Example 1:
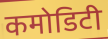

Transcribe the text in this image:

कमोडिटी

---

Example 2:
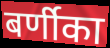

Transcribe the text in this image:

बर्णीका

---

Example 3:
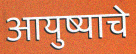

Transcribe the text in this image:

आयुष्याचे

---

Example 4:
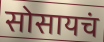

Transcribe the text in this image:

सोसायचं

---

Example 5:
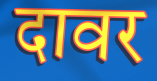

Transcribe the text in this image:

दावर